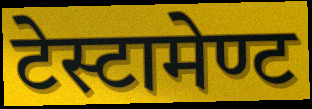
टेस्टामेण्ट